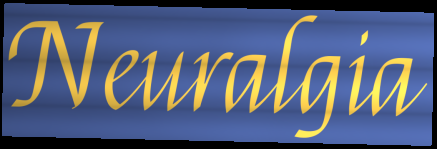
Neuralgia